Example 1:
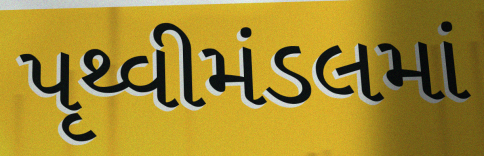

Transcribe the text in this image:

પૃથ્વીમંડલમાં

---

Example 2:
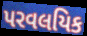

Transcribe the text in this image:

પરવલયિક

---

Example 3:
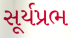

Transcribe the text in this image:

સૂર્યપ્રભ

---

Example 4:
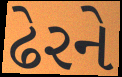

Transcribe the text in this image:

ઢેરને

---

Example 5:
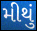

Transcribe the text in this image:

મીથું